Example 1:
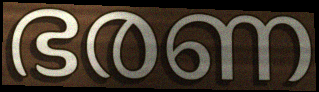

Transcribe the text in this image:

ഭരണ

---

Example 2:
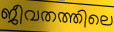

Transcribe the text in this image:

ജീവതത്തിലെ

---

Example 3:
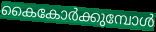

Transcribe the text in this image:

കൈകോർക്കുമ്പോൾ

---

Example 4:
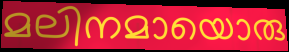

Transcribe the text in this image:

മലിനമായൊരു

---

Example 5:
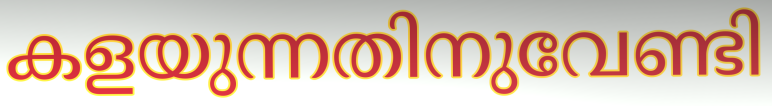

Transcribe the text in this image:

കളയുന്നതിനുവേണ്ടി